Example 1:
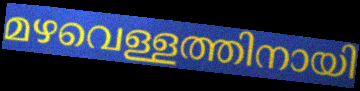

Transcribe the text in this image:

മഴവെള്ളത്തിനായി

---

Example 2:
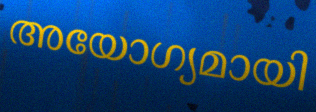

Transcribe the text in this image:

അയോഗ്യമായി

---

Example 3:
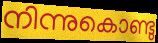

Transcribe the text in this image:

നിന്നുകൊണ്ടു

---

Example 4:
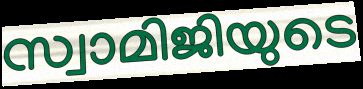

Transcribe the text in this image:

സ്വാമിജിയുടെ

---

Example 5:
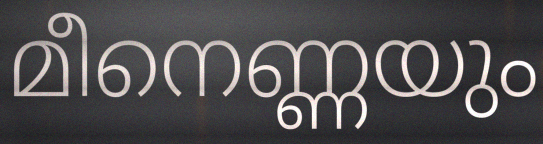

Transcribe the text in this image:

മീനെണ്ണയും